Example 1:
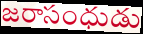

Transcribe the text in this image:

జరాసంధుడు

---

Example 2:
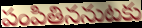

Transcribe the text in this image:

పంపితిననుటకు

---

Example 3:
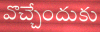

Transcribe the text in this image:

వొచ్చేందుకు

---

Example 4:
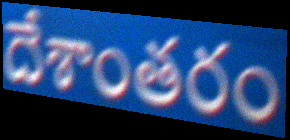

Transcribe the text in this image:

దేశాంతరం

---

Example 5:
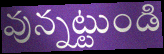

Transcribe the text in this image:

వున్నట్టుండి